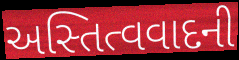
અસ્તિત્વવાદની